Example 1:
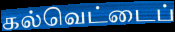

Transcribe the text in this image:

கல்வெட்டைப்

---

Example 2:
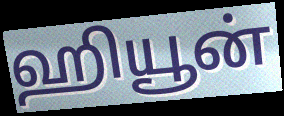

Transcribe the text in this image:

ஹியூன்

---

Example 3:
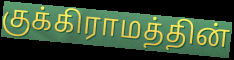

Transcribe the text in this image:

குக்கிராமத்தின்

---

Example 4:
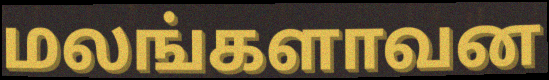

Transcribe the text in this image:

மலங்களாவன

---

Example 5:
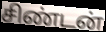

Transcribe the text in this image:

சிண்டன்